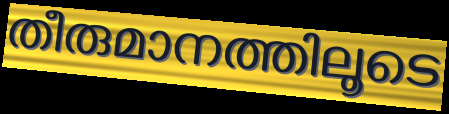
തീരുമാനത്തിലൂടെ